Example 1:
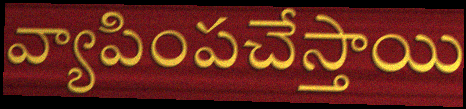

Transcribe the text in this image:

వ్యాపింపచేస్తాయి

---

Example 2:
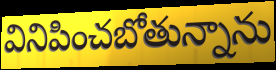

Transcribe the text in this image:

వినిపించబోతున్నాను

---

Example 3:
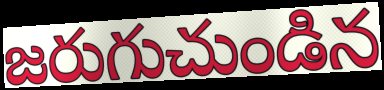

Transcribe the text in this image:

జరుగుచుండిన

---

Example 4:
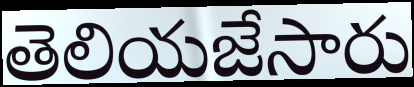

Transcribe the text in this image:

తెలియజేసారు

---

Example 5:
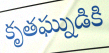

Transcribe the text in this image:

కృతఘ్నుడికి